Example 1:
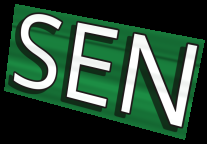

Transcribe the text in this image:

SEN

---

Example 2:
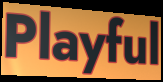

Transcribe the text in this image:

Playful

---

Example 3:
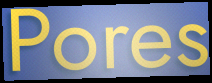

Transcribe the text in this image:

Pores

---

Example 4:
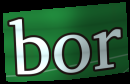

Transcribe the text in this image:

bor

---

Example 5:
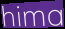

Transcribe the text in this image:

hima